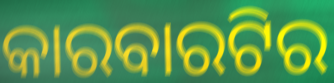
କାରବାରଟିର